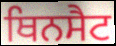
ਥਿਨਸੈਟ